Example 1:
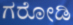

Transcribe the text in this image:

ಗರೋಡಿ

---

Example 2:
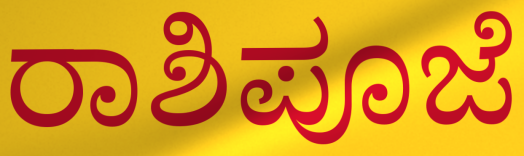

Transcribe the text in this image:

ರಾಶಿಪೂಜೆ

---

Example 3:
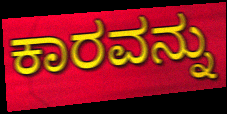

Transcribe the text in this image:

ಕಾರವನ್ನು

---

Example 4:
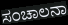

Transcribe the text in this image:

ಸಂಚಾಲನಾ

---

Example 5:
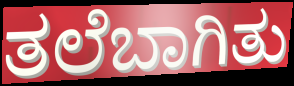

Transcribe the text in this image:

ತಲೆಬಾಗಿತು